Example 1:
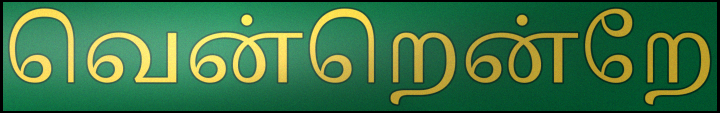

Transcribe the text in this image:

வென்றென்றே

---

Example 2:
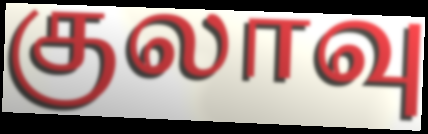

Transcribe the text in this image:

குலாவு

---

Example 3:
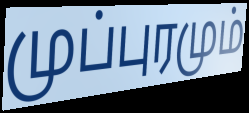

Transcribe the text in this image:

முப்புரமும்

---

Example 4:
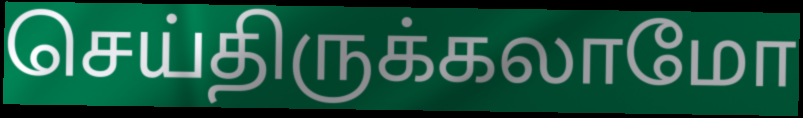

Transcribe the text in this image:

செய்திருக்கலாமோ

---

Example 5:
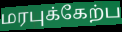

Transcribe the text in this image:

மரபுக்கேற்ப